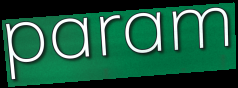
param